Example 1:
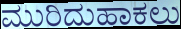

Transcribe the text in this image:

ಮುರಿದುಹಾಕಲು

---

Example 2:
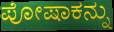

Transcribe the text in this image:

ಪೋಷಾಕನ್ನು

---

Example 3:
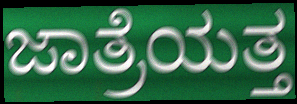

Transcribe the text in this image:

ಜಾತ್ರೆಯತ್ತ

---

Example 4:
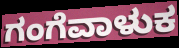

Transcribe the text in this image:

ಗಂಗೆವಾಳುಕ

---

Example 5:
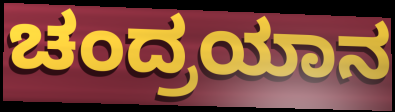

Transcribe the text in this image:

ಚಂದ್ರಯಾನ